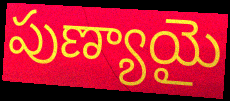
పుణ్యాయై